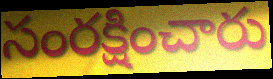
సంరక్షించారు